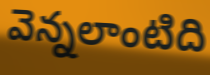
వెన్నలాంటిది